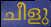
ചീളു